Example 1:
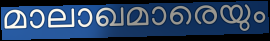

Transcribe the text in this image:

മാലാഖമാരെയും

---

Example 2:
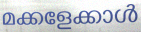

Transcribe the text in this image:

മക്കളേക്കാൾ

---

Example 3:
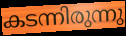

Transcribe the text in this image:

കടന്നിരുന്നു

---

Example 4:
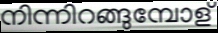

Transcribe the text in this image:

നിന്നിറങ്ങുമ്പോള്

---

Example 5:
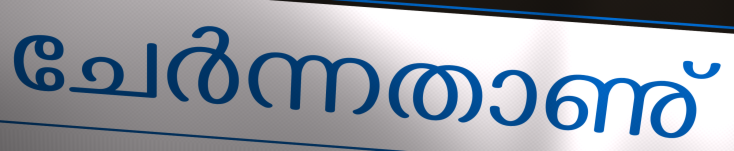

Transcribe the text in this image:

ചേർന്നതാണു്